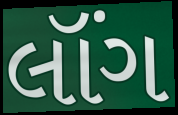
લૉંગ